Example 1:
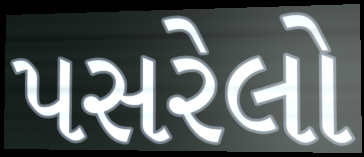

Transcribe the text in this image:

પસરેલો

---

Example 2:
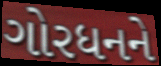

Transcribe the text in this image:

ગોરધનને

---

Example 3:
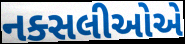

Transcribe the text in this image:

નક્સલીઓએ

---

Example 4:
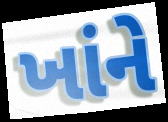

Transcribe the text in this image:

ખાંને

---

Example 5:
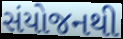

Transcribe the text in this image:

સંયોજનથી